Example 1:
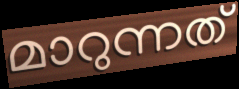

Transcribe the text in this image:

മാറുന്നത്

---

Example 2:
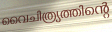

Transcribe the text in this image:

വൈചിത്ര്യത്തിന്റെ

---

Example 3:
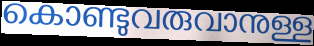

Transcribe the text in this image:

കൊണ്ടുവരുവാനുള്ള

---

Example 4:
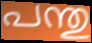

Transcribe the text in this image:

പന്തു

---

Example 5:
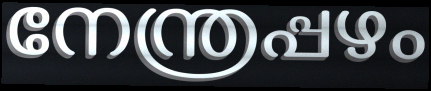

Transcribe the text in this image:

നേന്ത്രപ്പഴം